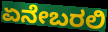
ಏನೇಬರಲಿ